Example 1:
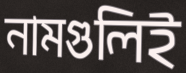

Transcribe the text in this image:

নামগুলিই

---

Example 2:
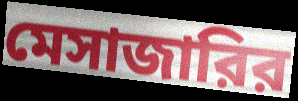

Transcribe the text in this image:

মেসাজারির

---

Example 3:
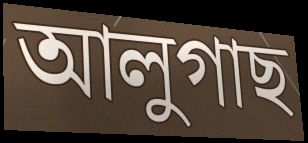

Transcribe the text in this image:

আলুগাছ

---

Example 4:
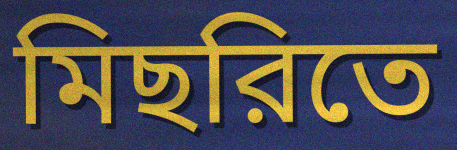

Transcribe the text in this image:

মিছরিতে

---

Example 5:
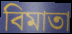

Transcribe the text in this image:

বিমাতা